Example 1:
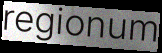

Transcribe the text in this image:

regionum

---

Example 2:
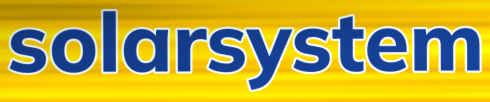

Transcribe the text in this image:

solarsystem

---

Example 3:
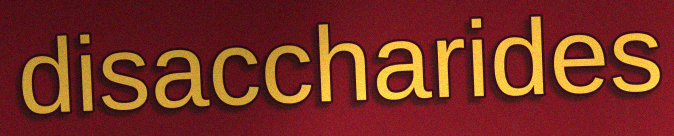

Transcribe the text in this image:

disaccharides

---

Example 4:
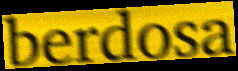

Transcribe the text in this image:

berdosa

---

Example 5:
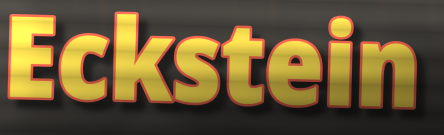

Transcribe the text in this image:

Eckstein